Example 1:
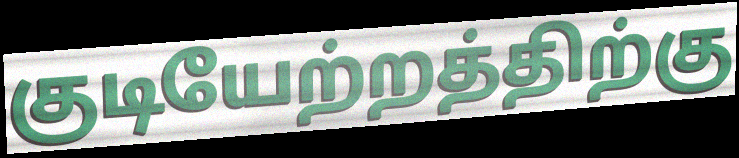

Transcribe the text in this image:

குடியேற்றத்திற்கு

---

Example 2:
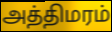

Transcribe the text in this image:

அத்திமரம்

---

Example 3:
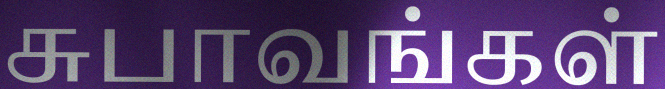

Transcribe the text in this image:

சுபாவங்கள்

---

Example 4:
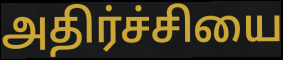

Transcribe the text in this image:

அதிர்ச்சியை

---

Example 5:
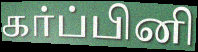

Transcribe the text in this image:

கர்ப்பினி